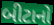
બીટાનો